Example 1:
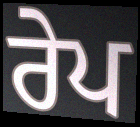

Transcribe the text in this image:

ਰੇਪ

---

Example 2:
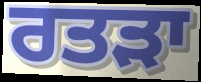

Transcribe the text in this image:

ਰਤੜਾ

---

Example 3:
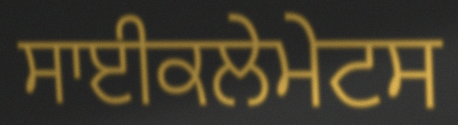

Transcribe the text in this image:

ਸਾਈਕਲੇਮੇਟਸ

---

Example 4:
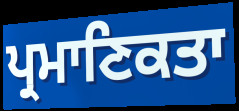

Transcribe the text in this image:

ਪ੍ਰਮਾਣਿਕਤਾ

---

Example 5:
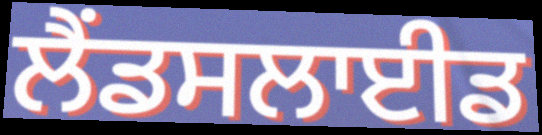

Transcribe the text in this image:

ਲੈਂਡਸਲਾਈਡ